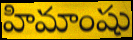
హిమాంషు